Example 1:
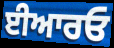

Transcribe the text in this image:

ਈਆਰਓ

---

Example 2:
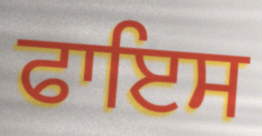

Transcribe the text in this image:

ਫਾਇਸ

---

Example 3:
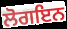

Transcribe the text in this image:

ਲੋਗਇਨ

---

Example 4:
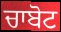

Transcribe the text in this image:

ਚਾਬੋਟ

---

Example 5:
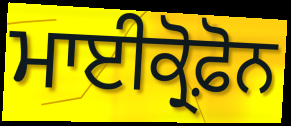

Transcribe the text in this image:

ਮਾਈਕ੍ਰੋਫ਼ੋਨ